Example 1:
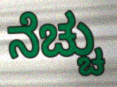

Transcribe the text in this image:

ನೆಚ್ಚು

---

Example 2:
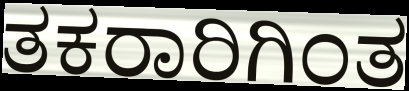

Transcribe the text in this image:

ತಕರಾರಿಗಿಂತ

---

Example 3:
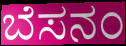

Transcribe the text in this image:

ಬೆಸನಂ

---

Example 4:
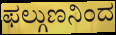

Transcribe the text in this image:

ಫಲ್ಗುಣನಿಂದ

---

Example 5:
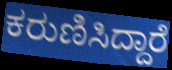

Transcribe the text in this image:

ಕರುಣಿಸಿದ್ದಾರೆ